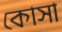
কোসা